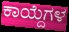
ಕಾಯ್ದೆಗಳ